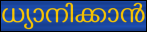
ധ്യാനിക്കാൻ